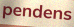
pendens